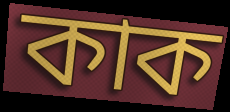
কাক